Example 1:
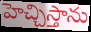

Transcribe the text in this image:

హెచ్చిస్తాను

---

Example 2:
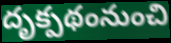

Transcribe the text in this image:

దృక్పథంనుంచి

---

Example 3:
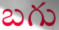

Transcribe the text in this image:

బగు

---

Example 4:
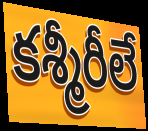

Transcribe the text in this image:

కశ్మీరీలే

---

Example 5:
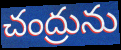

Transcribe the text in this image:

చంద్రును